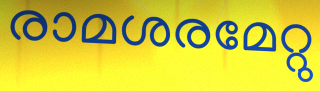
രാമശരമേറ്റു